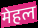
मेहल